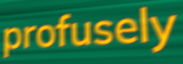
profusely